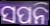
ସପନି